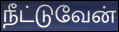
நீட்டுவேன்